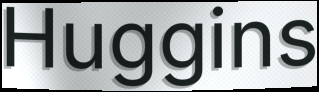
Huggins